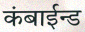
कंबाईन्ड